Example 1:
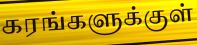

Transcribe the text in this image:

கரங்களுக்குள்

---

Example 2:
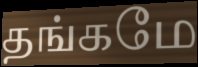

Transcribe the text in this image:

தங்கமே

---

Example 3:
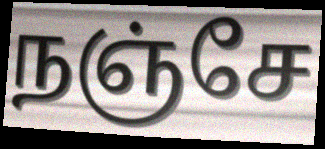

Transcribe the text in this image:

நஞ்சே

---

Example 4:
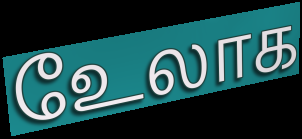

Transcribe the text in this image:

உேலாக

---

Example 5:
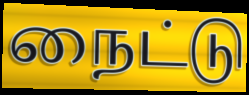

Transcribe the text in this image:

நைட்டு